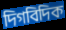
দিগবিদিক